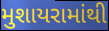
મુશાયરામાંથી